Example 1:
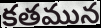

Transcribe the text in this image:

కతమున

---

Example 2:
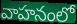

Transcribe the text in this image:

వాహనంలో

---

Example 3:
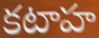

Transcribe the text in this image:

కటాహ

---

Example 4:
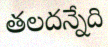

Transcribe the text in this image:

తలదన్నేది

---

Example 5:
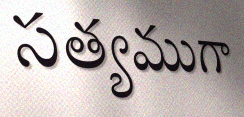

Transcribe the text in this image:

సత్యముగా